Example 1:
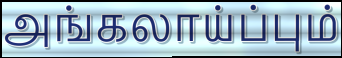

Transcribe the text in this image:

அங்கலாய்ப்பும்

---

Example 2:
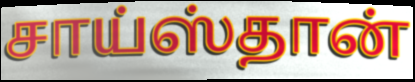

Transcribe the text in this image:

சாய்ஸ்தான்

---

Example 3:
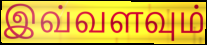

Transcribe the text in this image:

இவ்வளவும்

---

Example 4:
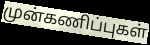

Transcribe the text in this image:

முன்கணிப்புகள்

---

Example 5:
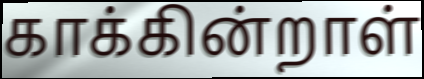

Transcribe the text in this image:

காக்கின்றாள்